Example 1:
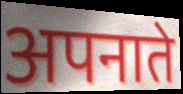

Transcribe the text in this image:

अपनाते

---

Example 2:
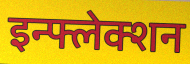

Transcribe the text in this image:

इन्फ्लेक्शन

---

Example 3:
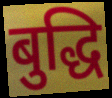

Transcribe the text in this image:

बुद्धि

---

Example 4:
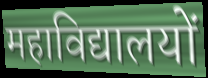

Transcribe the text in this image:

महाविद्यालयों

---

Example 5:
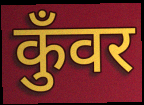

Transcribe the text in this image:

कुँवर